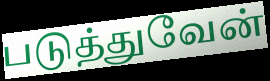
படுத்துவேன்